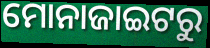
ମୋନାଜାଇଟରୁ